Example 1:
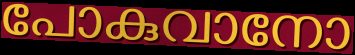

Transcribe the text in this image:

പോകുവാനോ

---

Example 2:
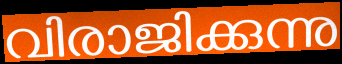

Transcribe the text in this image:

വിരാജിക്കുന്നു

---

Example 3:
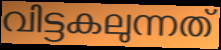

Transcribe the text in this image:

വിട്ടകലുന്നത്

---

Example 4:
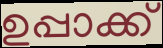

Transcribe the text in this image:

ഉപ്പാക്ക്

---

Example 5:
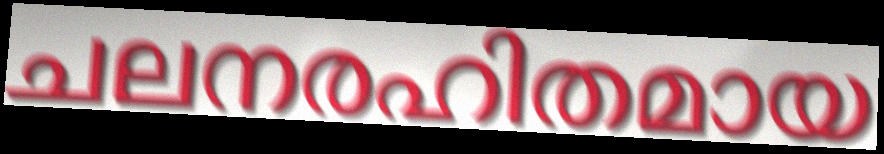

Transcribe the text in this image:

ചലനരഹിതമായ